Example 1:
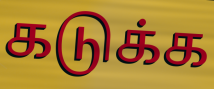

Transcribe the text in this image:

கடுக்க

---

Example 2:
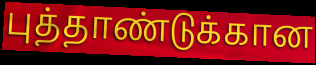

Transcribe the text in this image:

புத்தாண்டுக்கான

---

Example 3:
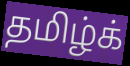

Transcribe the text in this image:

தமிழ்க்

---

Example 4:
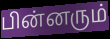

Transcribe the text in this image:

பின்னரும்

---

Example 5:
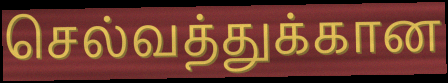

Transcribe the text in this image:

செல்வத்துக்கான